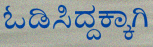
ಓಡಿಸಿದ್ದಕ್ಕಾಗಿ